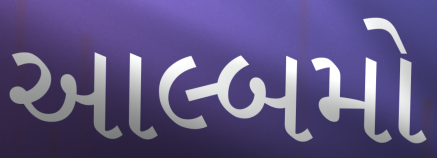
આલ્બમો